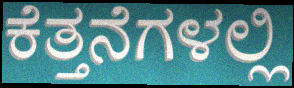
ಕೆತ್ತನೆಗಳಲ್ಲಿ